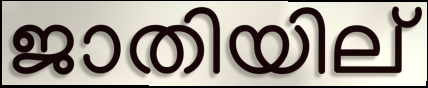
ജാതിയില്